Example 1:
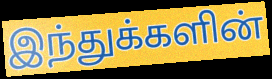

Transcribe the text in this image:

இந்துக்களின்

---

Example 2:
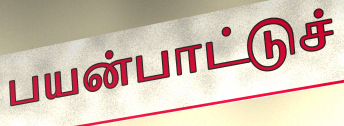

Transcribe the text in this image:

பயன்பாட்டுச்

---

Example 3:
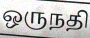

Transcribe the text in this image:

ஒருநதி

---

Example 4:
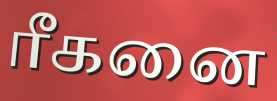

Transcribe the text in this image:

ரீகனை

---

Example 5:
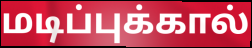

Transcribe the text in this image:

மடிப்புக்கால்